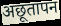
अछूतापन